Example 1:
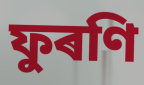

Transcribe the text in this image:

ফুৰণি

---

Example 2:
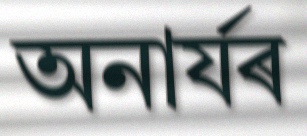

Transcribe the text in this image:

অনাৰ্যৰ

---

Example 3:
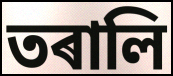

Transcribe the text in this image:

তৰালি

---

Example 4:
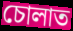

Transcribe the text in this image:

চোলাত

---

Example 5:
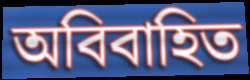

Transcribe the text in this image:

অবিবাহিত